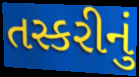
તસ્કરીનું